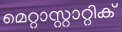
മെറ്റാസ്റ്റാറ്റിക്